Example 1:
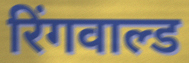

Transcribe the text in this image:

रिंगवाल्ड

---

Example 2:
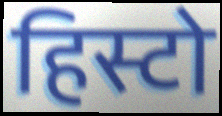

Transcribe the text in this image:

हिस्टो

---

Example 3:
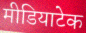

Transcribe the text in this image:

मीडियाटेक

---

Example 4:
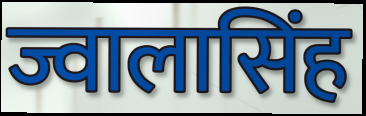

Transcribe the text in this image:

ज्वालासिंह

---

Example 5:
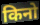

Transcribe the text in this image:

किनो